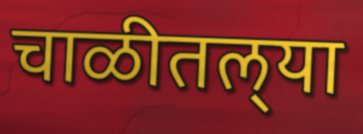
चाळीतल्या